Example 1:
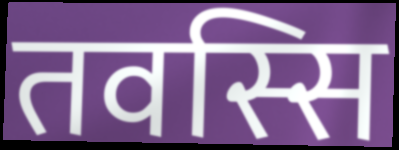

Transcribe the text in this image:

तवस्सि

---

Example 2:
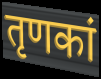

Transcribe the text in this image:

तृणकां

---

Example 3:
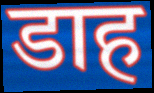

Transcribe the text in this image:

डाह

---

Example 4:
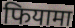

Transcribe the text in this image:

फियामा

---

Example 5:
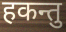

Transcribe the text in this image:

हकन्तु